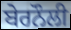
ਬੇਰਨੌਲੀ